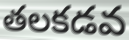
తలకడవ